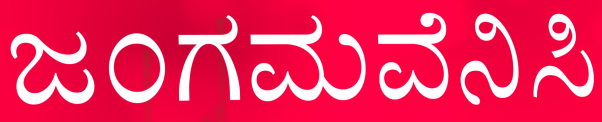
ಜಂಗಮವೆನಿಸಿ